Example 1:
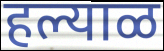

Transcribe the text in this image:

हल्याळ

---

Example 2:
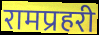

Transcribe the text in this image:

रामप्रहरी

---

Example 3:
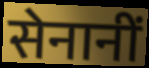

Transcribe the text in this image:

सेनानीं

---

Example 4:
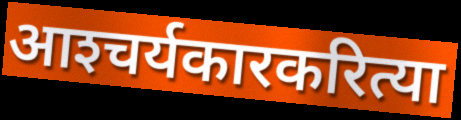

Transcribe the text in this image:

आश्‍चर्यकारकरित्या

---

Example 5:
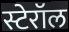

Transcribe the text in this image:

स्टेरॉल